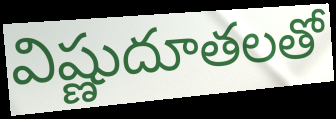
విష్ణుదూతలతో